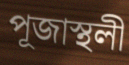
পূজাস্থলী